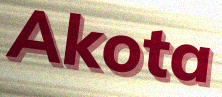
Akota